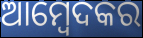
ଆମ୍ବେଦକର